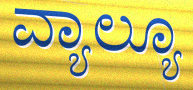
ವ್ಯಾಲ್ಯೂ